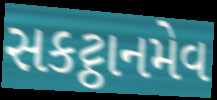
સકટ્ઠાનમેવ